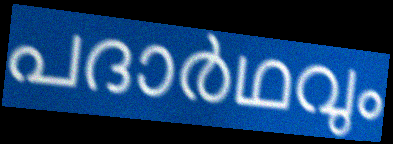
പദാർഥവും